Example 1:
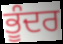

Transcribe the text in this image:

ਭੂੰਦਰ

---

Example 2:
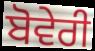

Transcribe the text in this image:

ਬੋਵੇਰੀ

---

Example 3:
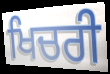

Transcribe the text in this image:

ਖਿਚਰੀ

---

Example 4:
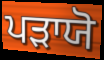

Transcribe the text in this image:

ਪੜਾਯੋ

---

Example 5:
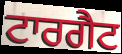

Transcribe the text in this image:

ਟਾਰਗੈਟ